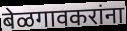
बेळगावकरांना